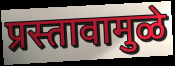
प्रस्तावामुळे